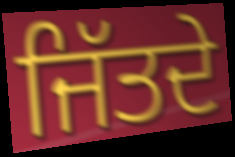
ਜਿੱਤਦੇ